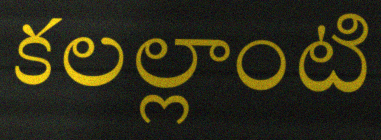
కలల్లాంటి